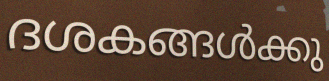
ദശകങ്ങൾക്കു